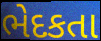
ભેદકતા